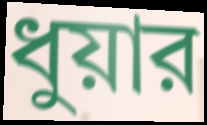
ধুয়ার